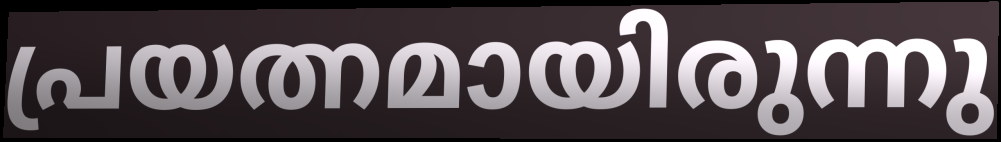
പ്രയത്നമായിരുന്നു